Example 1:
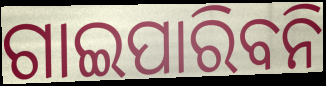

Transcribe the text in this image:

ଗାଇପାରିବନି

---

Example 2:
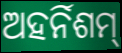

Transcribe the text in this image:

ଅହର୍ନିଶମ୍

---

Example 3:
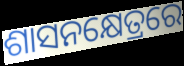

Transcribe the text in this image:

ଶାସନକ୍ଷେତ୍ରରେ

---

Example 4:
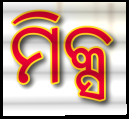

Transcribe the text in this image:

ମିକ୍ସ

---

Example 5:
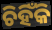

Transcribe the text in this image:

ଚିହିଁକି